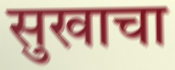
सुखाचा